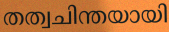
തത്വചിന്തയായി